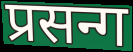
प्रसन्ग